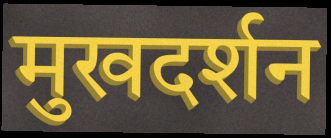
मुखदर्शन